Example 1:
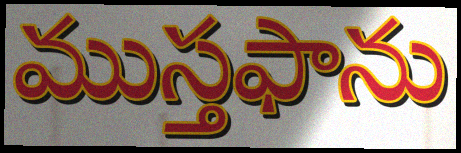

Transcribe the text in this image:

ముస్తఫాను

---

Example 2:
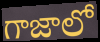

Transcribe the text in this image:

గాజాలో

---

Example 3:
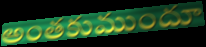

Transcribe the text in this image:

అంతకుముందూ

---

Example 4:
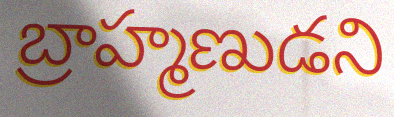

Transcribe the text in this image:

బ్రాహ్మణుడని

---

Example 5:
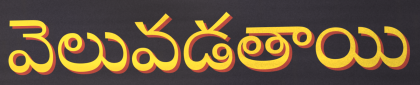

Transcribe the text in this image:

వెలువడతాయి